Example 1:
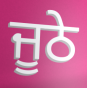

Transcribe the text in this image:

ਜੂਠੇ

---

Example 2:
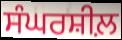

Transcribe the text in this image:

ਸੰਘਰਸ਼ੀਲ਼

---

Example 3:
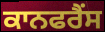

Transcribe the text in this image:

ਕਾਨਫਰੈਂਸ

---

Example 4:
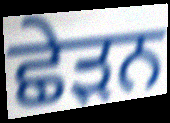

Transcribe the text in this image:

ਛੇੜਨ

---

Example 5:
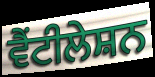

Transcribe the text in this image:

ਵੈਂਟੀਲੇਸ਼ਨ